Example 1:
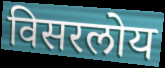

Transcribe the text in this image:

विसरलोय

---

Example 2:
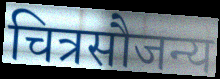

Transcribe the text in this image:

चित्रसौजन्य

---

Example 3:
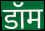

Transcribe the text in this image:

डॉम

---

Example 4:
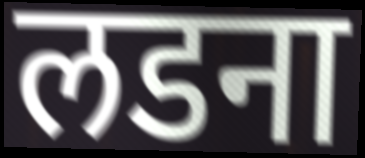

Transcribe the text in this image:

लडना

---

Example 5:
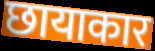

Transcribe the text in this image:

छायाकार